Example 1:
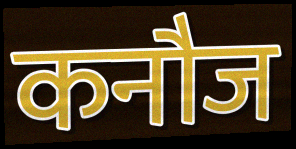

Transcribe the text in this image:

कनौज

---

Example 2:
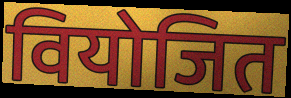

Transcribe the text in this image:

वियोजित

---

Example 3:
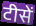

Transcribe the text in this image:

टीसें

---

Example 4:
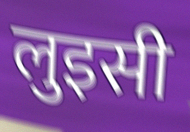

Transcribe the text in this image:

लुइसी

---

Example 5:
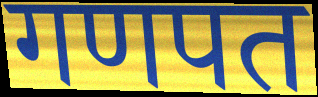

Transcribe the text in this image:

गणपत